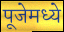
पूजेमध्ये